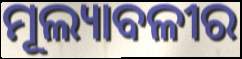
ମୂଲ୍ୟାବଳୀର